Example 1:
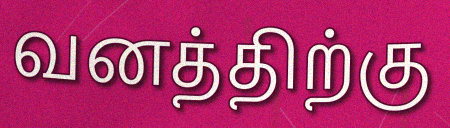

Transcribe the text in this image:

வனத்திற்கு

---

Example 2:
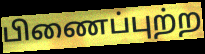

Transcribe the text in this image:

பிணைப்புற்ற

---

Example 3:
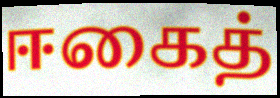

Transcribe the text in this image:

ஈகைத்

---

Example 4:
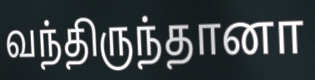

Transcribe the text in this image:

வந்திருந்தானா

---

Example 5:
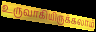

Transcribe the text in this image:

உருவாகியிருக்கலாம்